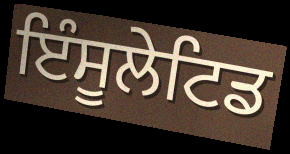
ਇੰਸੂਲੇਟਿਡ